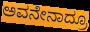
ಅವನೇನಾದ್ರೂ